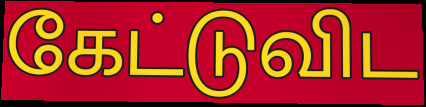
கேட்டுவிட